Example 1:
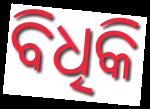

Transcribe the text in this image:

ବିଧିକି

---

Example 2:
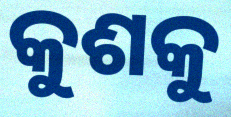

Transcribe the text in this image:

କୁଶକୁ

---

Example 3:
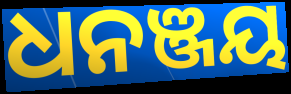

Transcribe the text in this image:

ଧନଞ୍ଜୟ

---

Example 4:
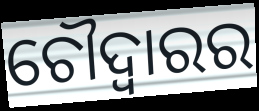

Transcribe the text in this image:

ଚୌଦ୍ୱାରର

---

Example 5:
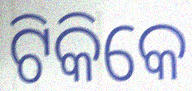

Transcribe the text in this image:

ଟିକିକେ